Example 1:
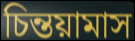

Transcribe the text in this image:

চিন্তয়ামাস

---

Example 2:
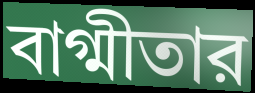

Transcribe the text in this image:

বাগ্মীতার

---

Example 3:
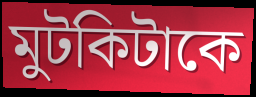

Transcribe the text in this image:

মুটকিটাকে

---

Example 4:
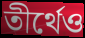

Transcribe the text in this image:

তীর্থেও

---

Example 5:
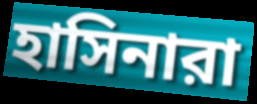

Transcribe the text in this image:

হাসিনারা